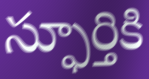
స్ఫూర్తికి